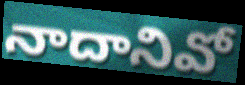
నాదానివో